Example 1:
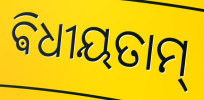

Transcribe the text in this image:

ଵିଧୀୟତାମ୍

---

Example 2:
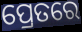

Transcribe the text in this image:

ପ୍ରେତରେ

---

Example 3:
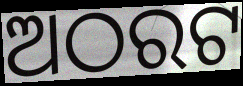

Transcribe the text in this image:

ଅଠରଟ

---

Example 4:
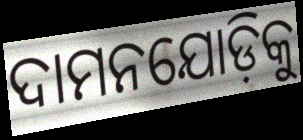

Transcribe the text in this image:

ଦାମନଯୋଡ଼ିକୁ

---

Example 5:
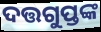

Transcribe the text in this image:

ଦତ୍ତଗୁପ୍ତଙ୍କ